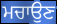
ਮਚਾਉਣ